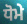
ਧੋਮੇ